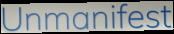
Unmanifest